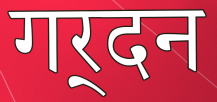
गर्दन